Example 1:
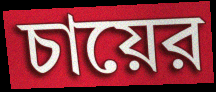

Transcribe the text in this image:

চায়ের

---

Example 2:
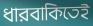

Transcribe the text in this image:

ধারবাকিতেই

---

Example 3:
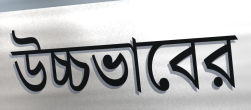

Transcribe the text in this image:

উচ্চভাবের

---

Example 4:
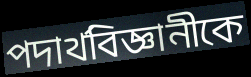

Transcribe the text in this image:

পদার্থবিজ্ঞানীকে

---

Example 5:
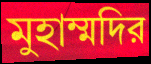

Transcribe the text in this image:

মুহাম্মদির